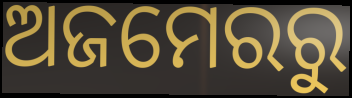
ଅଜମେରରୁ